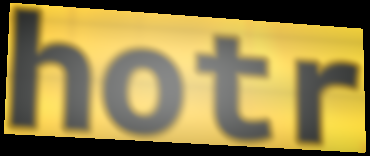
hotr